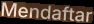
Mendaftar